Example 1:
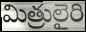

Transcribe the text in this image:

మిత్రులైరి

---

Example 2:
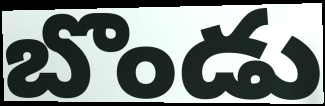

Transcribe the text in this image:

బొండు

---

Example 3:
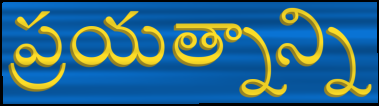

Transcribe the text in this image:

ప్రయత్నాన్ని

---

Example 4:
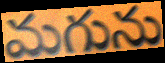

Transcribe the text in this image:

మగును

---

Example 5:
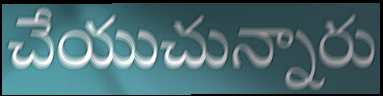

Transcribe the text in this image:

చేయుచున్నారు